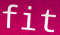
fit